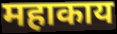
महाकाय